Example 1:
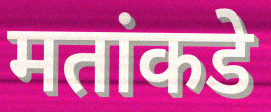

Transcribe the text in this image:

मतांकडे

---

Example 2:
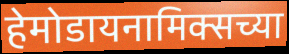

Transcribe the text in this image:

हेमोडायनामिक्सच्या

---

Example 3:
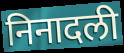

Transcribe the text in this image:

निनादली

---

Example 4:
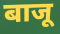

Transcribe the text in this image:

बाजू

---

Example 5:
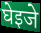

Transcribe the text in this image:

घेइजे